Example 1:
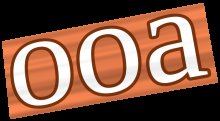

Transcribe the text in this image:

ooa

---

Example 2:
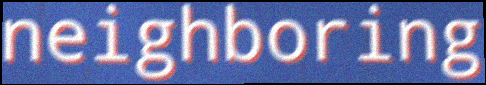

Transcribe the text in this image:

neighboring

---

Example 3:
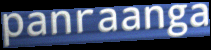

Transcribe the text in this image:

panraanga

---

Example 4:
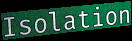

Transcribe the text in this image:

Isolation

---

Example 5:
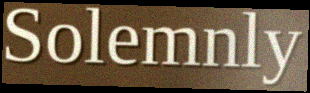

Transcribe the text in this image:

Solemnly